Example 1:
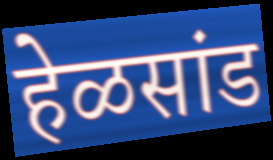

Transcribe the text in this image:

हेळसांड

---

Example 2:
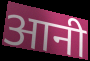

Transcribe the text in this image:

आनी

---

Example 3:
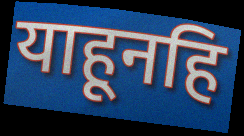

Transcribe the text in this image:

याहूनहि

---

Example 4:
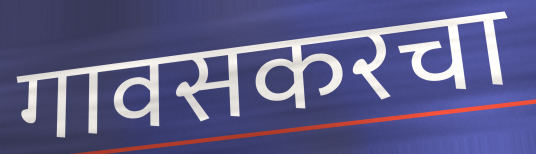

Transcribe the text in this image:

गावसकरचा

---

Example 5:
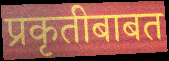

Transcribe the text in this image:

प्रकृतीबाबत